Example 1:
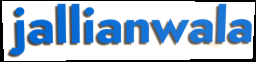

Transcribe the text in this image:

jallianwala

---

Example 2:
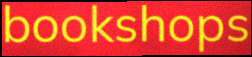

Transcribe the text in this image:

bookshops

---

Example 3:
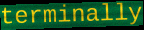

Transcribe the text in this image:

terminally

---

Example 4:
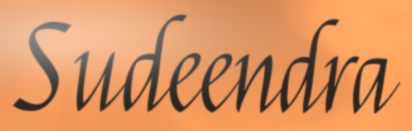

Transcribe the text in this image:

Sudeendra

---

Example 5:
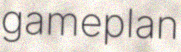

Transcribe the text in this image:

gameplan